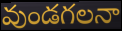
వుండగలనా